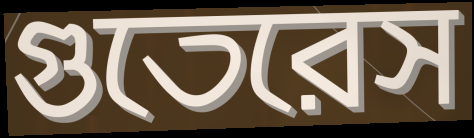
গুতেরেস